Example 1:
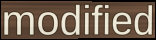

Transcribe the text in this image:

modified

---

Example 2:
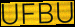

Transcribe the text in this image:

UFBU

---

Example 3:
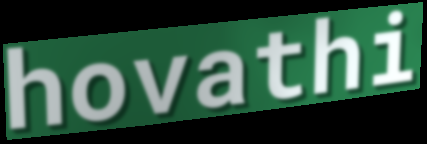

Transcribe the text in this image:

hovathi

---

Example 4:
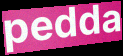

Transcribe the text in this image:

pedda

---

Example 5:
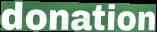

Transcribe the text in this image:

donation